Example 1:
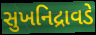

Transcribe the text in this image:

સુખનિદ્રાવડે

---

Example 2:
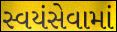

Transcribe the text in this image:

સ્વયંસેવામાં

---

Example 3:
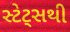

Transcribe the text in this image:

સ્ટેટ્સથી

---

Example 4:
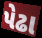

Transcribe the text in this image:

પેઢા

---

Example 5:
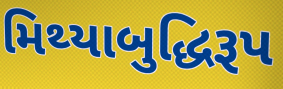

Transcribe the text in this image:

મિથ્યાબુદ્ધિરૂપ